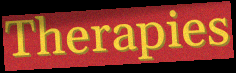
Therapies